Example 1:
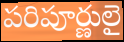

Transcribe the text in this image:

పరిపూర్ణులై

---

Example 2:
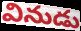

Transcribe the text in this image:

వినుడు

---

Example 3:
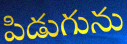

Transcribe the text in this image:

పిడుగును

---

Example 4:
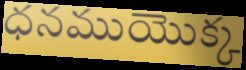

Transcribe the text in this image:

ధనముయొక్క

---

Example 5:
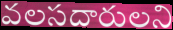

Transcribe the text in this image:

వలసదారులని